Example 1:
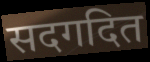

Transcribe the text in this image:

सदगदित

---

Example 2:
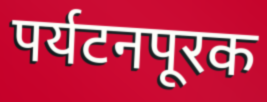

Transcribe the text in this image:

पर्यटनपूरक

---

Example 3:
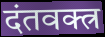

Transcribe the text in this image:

दंतवक्त्र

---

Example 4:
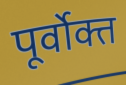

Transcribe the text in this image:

पूर्वोक्त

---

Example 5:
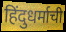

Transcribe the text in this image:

हिंदुधर्माची